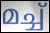
മച്ച്